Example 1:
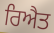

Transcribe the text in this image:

ਰਿਐਤ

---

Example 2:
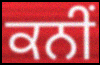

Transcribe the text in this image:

ਕਨੀਂ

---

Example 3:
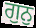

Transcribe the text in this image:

ਗੁਨੁ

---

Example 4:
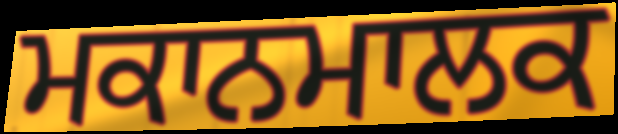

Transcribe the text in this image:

ਮਕਾਨਮਾਲਕ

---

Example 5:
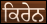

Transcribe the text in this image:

ਕਿਰੇਨ